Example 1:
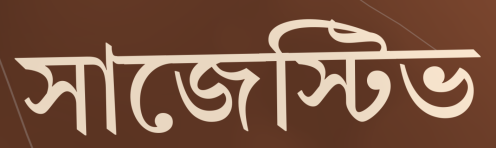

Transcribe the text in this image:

সাজেস্টিভ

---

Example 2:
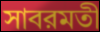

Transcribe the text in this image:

সাবরমতী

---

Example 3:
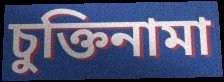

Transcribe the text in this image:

চুক্তিনামা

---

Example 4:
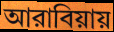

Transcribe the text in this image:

আরাবিয়ায়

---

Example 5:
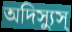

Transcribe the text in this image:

অদিস্যুস্